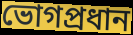
ভোগপ্রধান